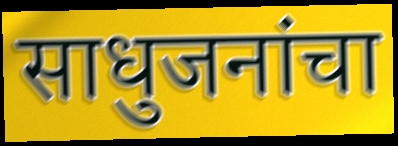
साधुजनांचा